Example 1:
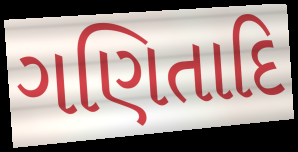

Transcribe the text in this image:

ગણિતાદિ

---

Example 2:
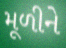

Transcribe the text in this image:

મૂળીને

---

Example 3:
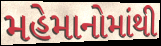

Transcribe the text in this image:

મહેમાનોમાંથી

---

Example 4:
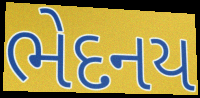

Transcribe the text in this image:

ભેદનય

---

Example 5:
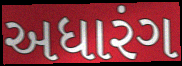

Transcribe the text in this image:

અધારંગ